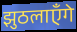
झुठलाएँगे